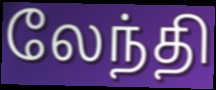
லேந்தி